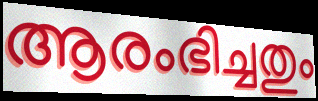
ആരംഭിച്ചതും